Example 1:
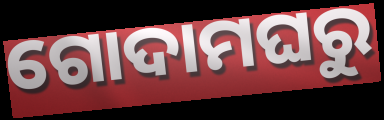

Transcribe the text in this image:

ଗୋଦାମଘରୁ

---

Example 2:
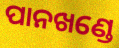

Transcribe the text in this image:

ପାନଖଣ୍ଡେ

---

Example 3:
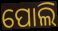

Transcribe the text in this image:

ପୋଲି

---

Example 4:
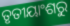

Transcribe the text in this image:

ତୃତୀୟାଂଶରୁ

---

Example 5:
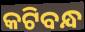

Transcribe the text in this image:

କଟିବନ୍ଧ